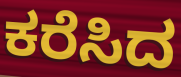
ಕರೆಸಿದ